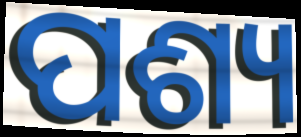
ପଶ୍ୟ